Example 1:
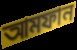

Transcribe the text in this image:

আমফান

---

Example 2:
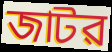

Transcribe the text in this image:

জাটৱ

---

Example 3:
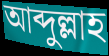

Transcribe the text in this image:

আব্দুল্লাহ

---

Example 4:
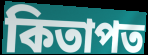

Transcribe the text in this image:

কিতাপত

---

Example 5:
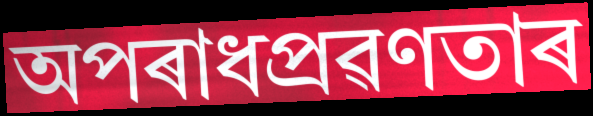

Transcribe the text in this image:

অপৰাধপ্ৰৱণতাৰ